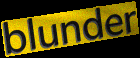
blunder